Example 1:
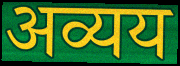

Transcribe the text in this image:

अव्यय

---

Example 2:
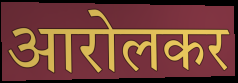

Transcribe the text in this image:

आरोलकर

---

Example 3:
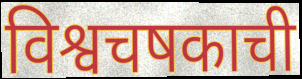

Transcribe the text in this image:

विश्वचषकाची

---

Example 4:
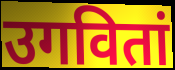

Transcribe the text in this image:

उगवितां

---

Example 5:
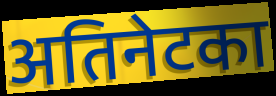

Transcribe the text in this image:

अतिनेटका